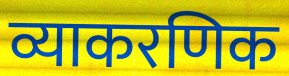
व्याकरणिक